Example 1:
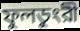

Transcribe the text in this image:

ফুলডুংরী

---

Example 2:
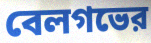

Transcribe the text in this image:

বেলগভের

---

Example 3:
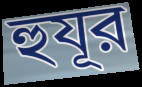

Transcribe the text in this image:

হুযূর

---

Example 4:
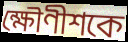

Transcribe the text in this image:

ক্ষৌণীশকে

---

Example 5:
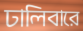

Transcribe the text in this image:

ঢালিবারে